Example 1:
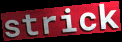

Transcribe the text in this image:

strick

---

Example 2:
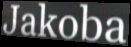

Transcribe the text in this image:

Jakoba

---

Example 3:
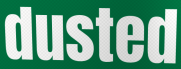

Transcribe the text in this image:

dusted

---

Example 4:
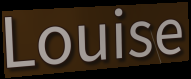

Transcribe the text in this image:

Louise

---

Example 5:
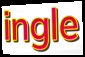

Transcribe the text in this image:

ingle